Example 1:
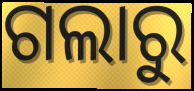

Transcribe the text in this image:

ଗଲାରୁ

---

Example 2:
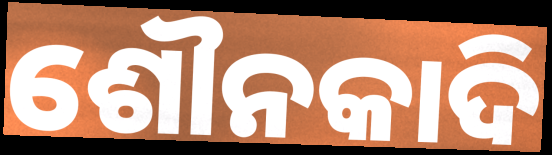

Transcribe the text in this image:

ଶୌନକାଦି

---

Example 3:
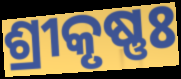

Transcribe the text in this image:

ଶ୍ରୀକୃଷ୍ଣଃ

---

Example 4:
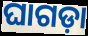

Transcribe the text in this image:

ଘାଗଡ଼ା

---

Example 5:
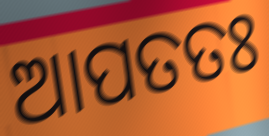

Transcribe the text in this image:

ଆପତତଃ